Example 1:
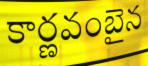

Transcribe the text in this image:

కార్ణవంబైన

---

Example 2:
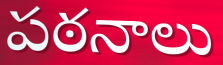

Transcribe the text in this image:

పఠనాలు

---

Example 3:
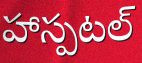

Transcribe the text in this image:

హాస్పటల్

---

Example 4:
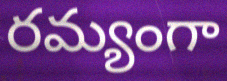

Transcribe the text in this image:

రమ్యంగా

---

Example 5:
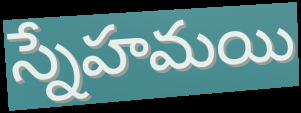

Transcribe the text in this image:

స్నేహమయి